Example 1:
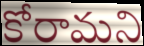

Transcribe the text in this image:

కోరామని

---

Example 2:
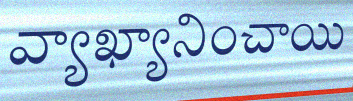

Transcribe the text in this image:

వ్యాఖ్యానించాయి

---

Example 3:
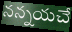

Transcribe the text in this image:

నన్నయచే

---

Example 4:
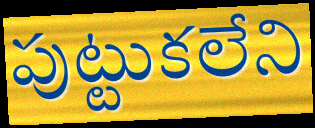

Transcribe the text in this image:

పుట్టుకలేని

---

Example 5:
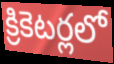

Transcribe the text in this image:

క్రికెటర్లలో